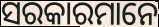
ସରକାରମାନେ